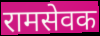
रामसेवक